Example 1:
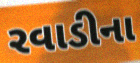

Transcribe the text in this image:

રવાડીના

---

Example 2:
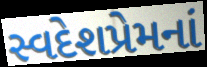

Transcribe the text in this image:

સ્વદેશપ્રેમનાં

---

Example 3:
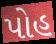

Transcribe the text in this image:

પોહ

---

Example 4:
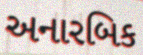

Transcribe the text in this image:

અનારબિક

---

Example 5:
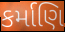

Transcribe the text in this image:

કર્માણિ